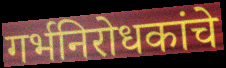
गर्भनिरोधकांचे